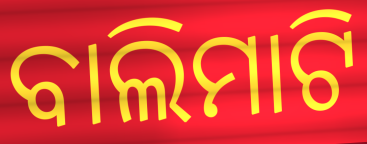
ବାଲିମାଟି